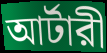
আর্টারী